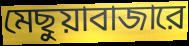
মেছুয়াবাজারে